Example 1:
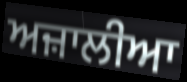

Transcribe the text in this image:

ਅਜ਼ਾਲੀਆ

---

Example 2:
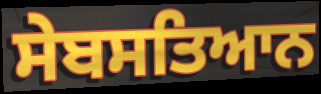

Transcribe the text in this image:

ਸੇਬਸਤਿਆਨ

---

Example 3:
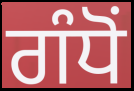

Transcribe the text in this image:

ਗੰਧੋਂ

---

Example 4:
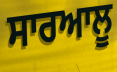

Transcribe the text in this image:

ਸਾਰਆਲੂ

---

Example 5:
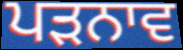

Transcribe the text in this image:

ਪੜਨਾਵ